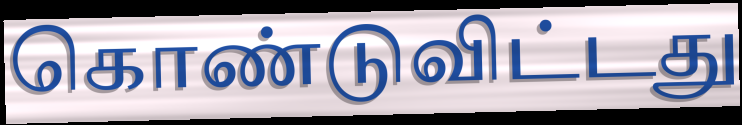
கொண்டுவிட்டது